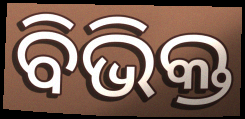
ବିଭିକ୍ତ